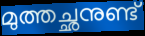
മുത്തച്ഛനുണ്ട്